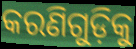
କରଣିଗୁଡ଼ିକୁ